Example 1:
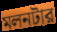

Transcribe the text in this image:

মলনটার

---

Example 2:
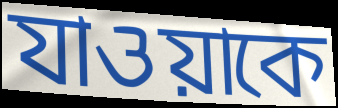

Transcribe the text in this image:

যাওয়াকে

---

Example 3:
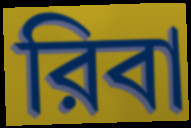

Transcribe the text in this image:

রিবা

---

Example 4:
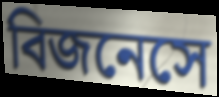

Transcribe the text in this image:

বিজনেসে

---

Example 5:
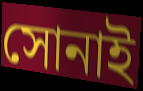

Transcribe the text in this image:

সোনাই